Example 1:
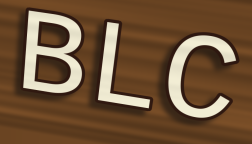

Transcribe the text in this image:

BLC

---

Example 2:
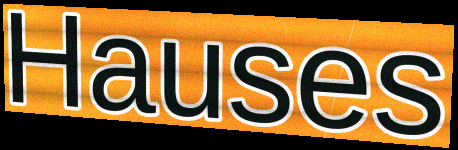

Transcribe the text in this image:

Hauses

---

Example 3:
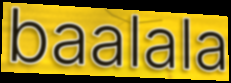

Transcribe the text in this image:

baalala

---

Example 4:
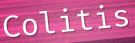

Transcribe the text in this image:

Colitis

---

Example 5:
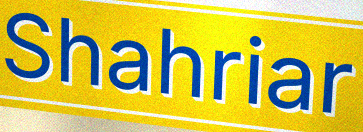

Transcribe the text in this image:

Shahriar